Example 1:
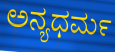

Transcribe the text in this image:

ಅನ್ಯಧರ್ಮ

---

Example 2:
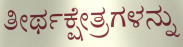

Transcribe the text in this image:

ತೀರ್ಥಕ್ಷೇತ್ರಗಳನ್ನು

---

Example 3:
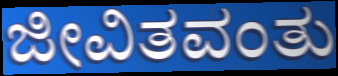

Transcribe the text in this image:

ಜೀವಿತವಂತು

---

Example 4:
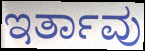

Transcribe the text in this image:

ಇರ್ತಾವು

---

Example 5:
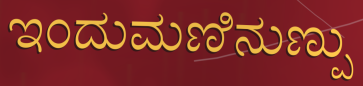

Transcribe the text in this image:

ಇಂದುಮಣಿನುಣ್ಪು